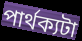
পার্থক্যটা